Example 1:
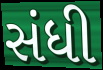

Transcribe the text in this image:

સંધી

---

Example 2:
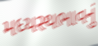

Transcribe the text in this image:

મધ્યસ્થભાવનું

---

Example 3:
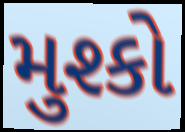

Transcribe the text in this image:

મુશ્કો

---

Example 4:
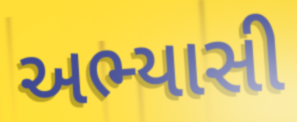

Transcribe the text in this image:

અભ્યાસી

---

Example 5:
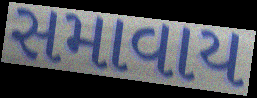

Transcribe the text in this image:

સમાવાય